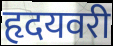
हृदयवरी